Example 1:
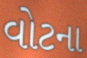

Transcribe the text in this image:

વોટના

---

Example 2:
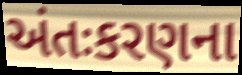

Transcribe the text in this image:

અંતઃકરણના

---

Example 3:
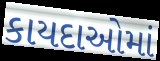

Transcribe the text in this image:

કાયદાઓમાં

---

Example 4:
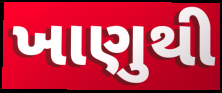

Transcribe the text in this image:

ખાણુથી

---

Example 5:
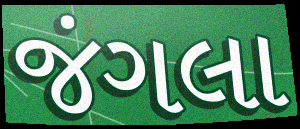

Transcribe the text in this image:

જંગલા